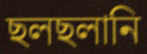
ছলছলানি